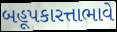
બહૂપકારત્તાભાવે